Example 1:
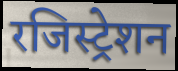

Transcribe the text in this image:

रजिस्ट्रेशन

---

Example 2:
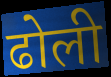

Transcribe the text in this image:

ढोली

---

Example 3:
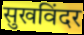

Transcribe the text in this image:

सुखविंदर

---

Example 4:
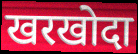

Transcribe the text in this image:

खरखोदा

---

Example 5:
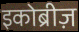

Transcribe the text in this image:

इकोब्रीज़